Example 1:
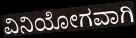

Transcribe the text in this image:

ವಿನಿಯೋಗವಾಗಿ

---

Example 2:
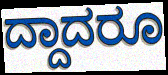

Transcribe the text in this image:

ದ್ದಾದರೂ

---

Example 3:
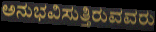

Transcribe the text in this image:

ಅನುಭವಿಸುತ್ತಿರುವವರು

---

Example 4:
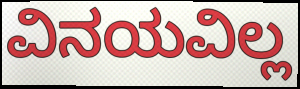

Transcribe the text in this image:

ವಿನಯವಿಲ್ಲ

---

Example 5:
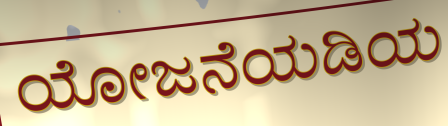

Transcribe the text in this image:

ಯೋಜನೆಯಡಿಯ